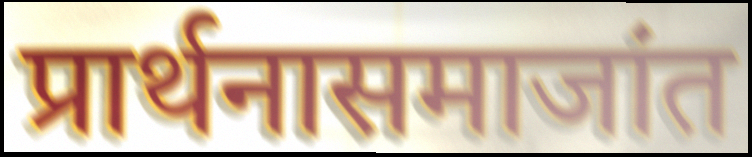
प्रार्थनासमाजांत